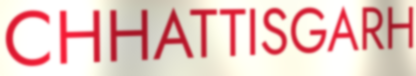
CHHATTISGARH